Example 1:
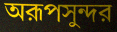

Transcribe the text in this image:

অরূপসুন্দর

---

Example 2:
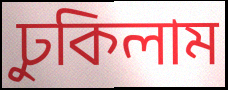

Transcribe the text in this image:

ঢুকিলাম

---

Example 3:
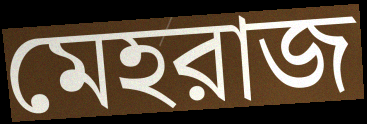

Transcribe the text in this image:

মেহরাজ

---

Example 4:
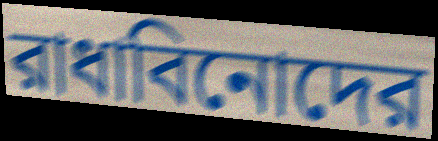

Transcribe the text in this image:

রাধাবিনোদের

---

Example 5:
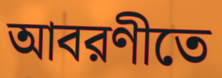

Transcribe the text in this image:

আবরণীতে